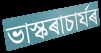
ভাস্কৰাচাৰ্যৰ